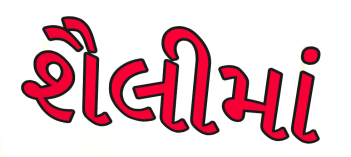
શૈલીમાં